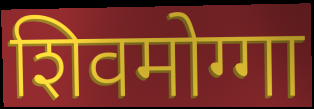
शिवमोग्गा